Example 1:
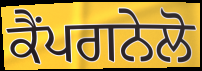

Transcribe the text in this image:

ਕੈਂਪਗਨੇਲੋ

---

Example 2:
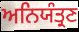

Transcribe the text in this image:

ਅਨਿਯੰਤ੍ਰਣ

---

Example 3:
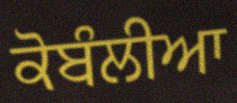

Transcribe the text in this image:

ਕੋਬੰਲੀਆ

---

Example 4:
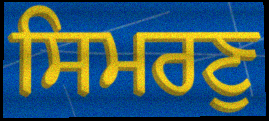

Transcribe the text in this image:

ਸਿਮਰਣੁ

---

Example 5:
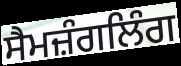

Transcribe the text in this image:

ਸੈਮਜ਼ੰਗਲਿੰਗ